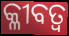
କ୍ଳୀବତ୍ବ